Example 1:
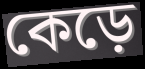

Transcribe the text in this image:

কেড়ে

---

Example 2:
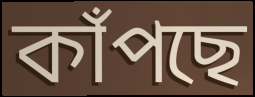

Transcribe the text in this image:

কাঁপছে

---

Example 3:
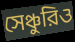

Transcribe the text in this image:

সেঞ্চুরিও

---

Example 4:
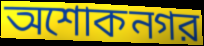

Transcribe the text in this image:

অশোকনগর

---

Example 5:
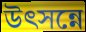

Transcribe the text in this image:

উৎসন্নে